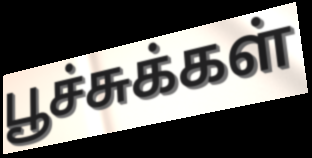
பூச்சுக்கள்